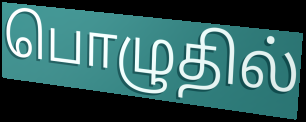
பொழுதில்